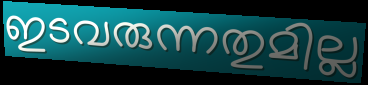
ഇടവരുന്നതുമില്ല